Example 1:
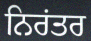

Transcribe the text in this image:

ਨਿਰਂਤਰ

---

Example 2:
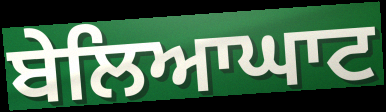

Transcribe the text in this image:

ਬੇਲਿਆਘਾਟ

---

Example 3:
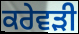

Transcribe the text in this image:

ਕਰੇਵੜੀ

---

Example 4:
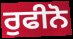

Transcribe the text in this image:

ਰੁਫੀਨੋ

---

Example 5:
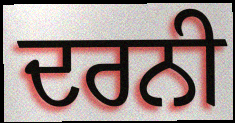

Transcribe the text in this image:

ਦਰਨੀ